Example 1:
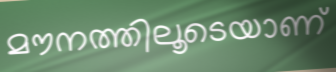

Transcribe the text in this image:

മൗനത്തിലൂടെയാണ്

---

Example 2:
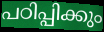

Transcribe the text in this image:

പഠിപ്പിക്കും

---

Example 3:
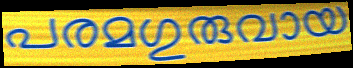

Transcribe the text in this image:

പരമഗുരുവായ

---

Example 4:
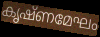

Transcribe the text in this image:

കൃഷ്ണമേഘം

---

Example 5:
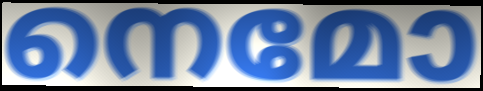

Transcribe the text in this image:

നെമോ